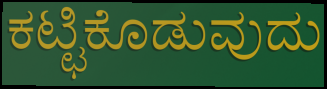
ಕಟ್ಟಿಕೊಡುವುದು